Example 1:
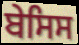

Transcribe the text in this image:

ਬੇਸਿਸ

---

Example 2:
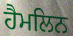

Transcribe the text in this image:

ਹੈਮਲਿਨ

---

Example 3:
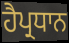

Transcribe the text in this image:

ਹੈਪ੍ਰਧਾਨ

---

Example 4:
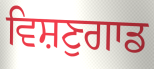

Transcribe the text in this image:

ਵਿਸ਼ਣੁਗਾਡ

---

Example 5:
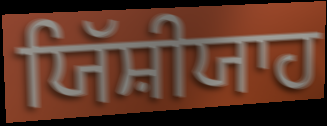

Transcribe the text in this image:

ਯਿੱਸ਼ੀਯਾਹ